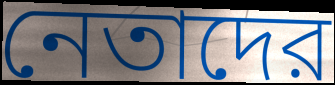
নেতাদের